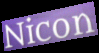
Nicon